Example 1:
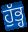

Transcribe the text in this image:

ਹੁੱਭ੍ਹ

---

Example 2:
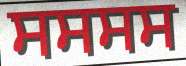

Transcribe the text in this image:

ਸਸਸਸ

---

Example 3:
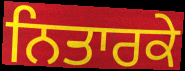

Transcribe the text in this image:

ਨਿਤਾਰਕੇ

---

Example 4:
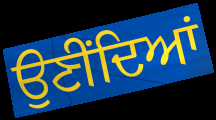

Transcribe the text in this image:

ਉਣੀਂਦਿਆਂ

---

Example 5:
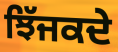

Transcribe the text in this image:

ਝਿੱਜਕਦੇ